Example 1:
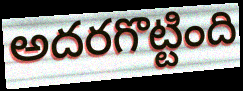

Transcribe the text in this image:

అదరగొట్టింది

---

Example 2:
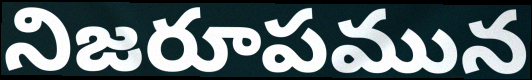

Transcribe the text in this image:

నిజరూపమున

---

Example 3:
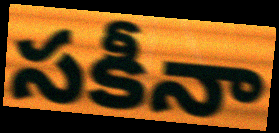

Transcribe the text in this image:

సకీనా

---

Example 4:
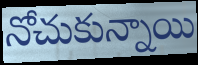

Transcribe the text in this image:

నోచుకున్నాయి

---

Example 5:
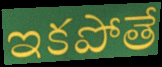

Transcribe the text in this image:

ఇకపోతే